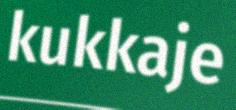
kukkaje